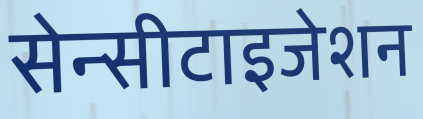
सेन्सीटाइजेशन